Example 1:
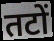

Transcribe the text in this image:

तटों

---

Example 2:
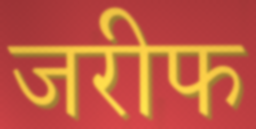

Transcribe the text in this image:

जरीफ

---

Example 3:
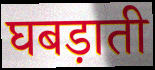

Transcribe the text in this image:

घबड़ाती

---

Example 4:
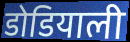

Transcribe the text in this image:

डोडियाली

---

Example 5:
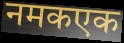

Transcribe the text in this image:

नमकएक